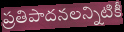
ప్రతిపాదనలన్నిటికీ